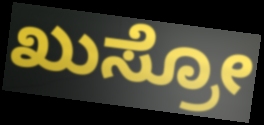
ಖುಸ್ರೋ